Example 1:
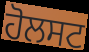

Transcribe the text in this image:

ਹੋਲਸਟ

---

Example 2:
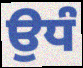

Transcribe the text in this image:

ਉਧੰ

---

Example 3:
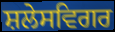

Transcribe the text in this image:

ਸ਼ਲੇਸਵਿਗਰ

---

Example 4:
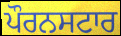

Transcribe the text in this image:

ਪੌਰਨਸਟਾਰ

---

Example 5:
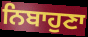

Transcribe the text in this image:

ਨਿਬਾਹੁਣਾ